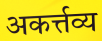
अकर्त्तव्य